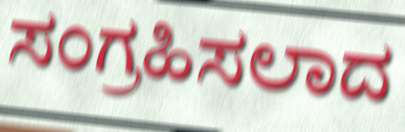
ಸಂಗ್ರಹಿಸಲಾದ